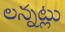
లన్నట్లు